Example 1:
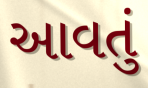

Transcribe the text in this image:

આવતું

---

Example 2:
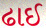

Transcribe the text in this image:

ઢાઈ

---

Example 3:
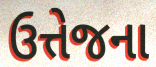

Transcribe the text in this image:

ઉત્તેજના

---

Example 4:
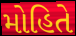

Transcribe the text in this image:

મોહિતે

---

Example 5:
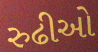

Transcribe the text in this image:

રુઢીઓ